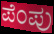
ಪೆಂಪು